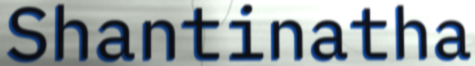
Shantinatha